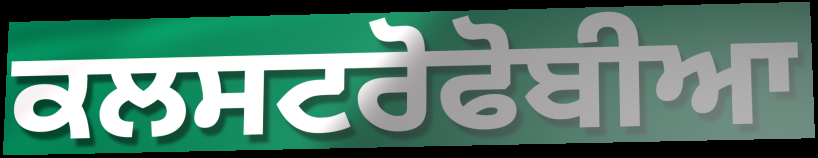
ਕਲਸਟਰੋਫੋਬੀਆ